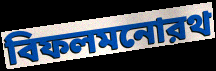
বিফলমনোরথ